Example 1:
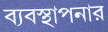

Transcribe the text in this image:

ব্যবস্থাপনার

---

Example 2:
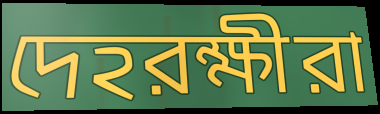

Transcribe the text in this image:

দেহরক্ষীরা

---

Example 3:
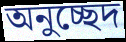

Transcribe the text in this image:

অনুচ্ছেদ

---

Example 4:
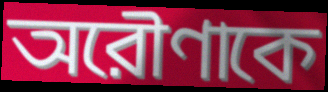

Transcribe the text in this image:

অরৌণাকে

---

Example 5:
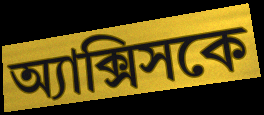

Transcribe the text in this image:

অ্যাক্সিসকে